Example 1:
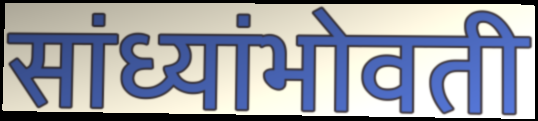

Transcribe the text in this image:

सांध्यांभोवती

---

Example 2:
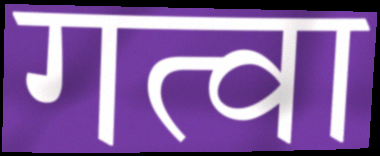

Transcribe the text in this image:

गत्वा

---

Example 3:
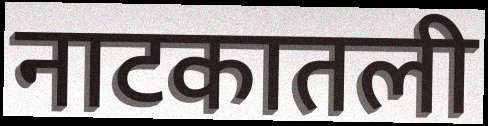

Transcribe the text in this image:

नाटकातली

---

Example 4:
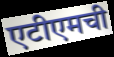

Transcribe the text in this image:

एटीएमची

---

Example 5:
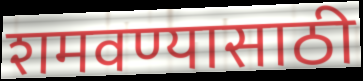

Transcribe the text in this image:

शमवण्यासाठी